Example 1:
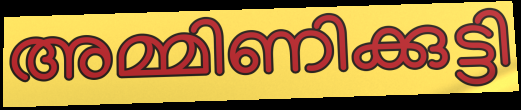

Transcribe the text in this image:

അമ്മിണിക്കുട്ടി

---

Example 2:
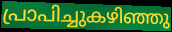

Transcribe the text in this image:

പ്രാപിച്ചുകഴിഞ്ഞു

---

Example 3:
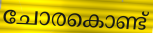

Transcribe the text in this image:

ചോരകൊണ്ട്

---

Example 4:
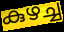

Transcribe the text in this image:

കുഴച്ച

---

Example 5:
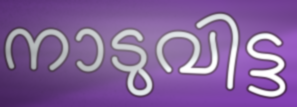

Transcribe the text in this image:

നാടുവിട്ട